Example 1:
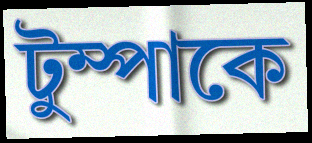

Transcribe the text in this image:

টুম্পাকে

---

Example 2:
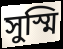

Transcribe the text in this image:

সুস্মি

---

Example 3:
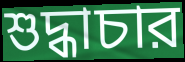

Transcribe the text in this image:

শুদ্ধাচার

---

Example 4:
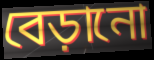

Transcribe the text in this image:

বেড়ানো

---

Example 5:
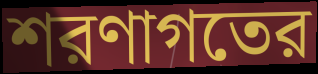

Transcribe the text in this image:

শরণাগতের